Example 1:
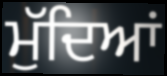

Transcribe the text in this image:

ਮੁੱਦਿਆਂ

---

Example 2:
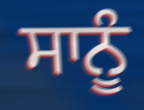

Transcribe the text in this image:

ਸਾਨੂੰ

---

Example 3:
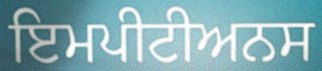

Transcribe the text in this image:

ਇਮਪੀਟੀਅਨਸ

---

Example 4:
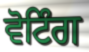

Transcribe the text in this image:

ਵੋਟਿੰਗ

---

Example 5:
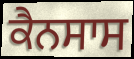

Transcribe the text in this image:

ਕੈਨਸਾਸ